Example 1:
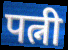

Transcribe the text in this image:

पत्नी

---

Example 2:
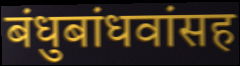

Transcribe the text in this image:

बंधुबांधवांसह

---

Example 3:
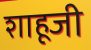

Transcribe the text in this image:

शाहूजी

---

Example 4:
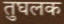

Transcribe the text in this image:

तुघलक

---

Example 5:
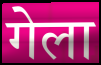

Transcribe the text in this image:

गेला